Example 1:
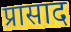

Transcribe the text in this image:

प्रासाद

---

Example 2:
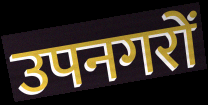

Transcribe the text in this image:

उपनगरों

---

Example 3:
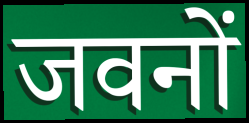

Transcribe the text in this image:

जवनों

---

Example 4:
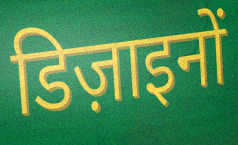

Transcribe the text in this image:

डिज़ाइनों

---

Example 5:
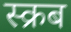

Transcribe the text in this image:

स्क्रब